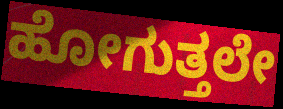
ಹೋಗುತ್ತಲೇ